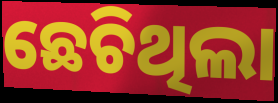
ଛେଚିଥିଲା